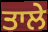
ਤਾਲੇ